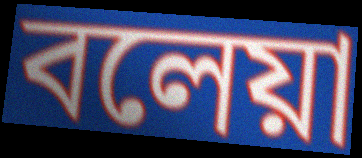
বলেয়া